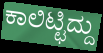
ಕಾಲಿಟ್ಟಿದ್ದು